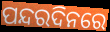
ପନ୍ଦରଦିନରେ